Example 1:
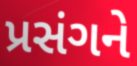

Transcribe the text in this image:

પ્રસંગને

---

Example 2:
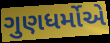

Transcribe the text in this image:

ગુણધર્મોએ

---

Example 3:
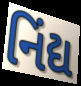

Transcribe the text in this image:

નિંદ્ય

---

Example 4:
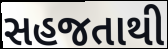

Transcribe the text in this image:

સહજતાથી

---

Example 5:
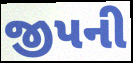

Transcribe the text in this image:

જીપની